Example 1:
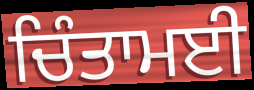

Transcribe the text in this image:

ਚਿੰਤਾਮਈ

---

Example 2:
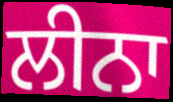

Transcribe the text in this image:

ਲੀਨਾ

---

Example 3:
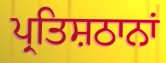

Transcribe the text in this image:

ਪ੍ਰਤਿਸ਼ਠਾਨਾਂ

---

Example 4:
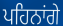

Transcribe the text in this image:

ਪਹਿਨਾਂਗੇ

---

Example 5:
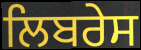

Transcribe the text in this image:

ਲਿਬਰੇਸ